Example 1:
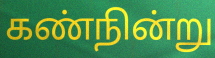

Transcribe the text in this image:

கண்நின்று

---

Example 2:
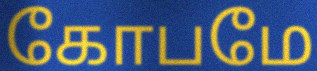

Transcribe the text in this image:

கோபமே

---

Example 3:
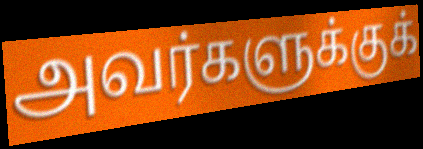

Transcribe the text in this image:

அவர்களுக்குக்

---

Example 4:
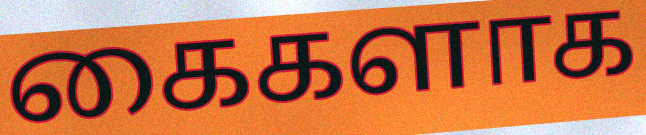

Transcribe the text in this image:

கைகளாக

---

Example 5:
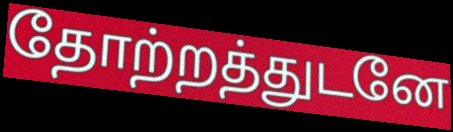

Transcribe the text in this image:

தோற்றத்துடனே